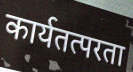
कार्यतत्परता